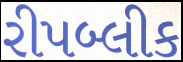
રીપબ્લીક